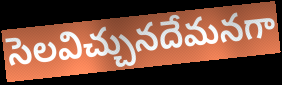
సెలవిచ్చునదేమనగా